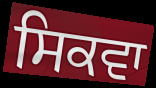
ਸਿਕਵਾ